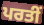
ਪਰਤੀਂ